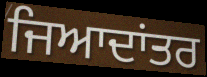
ਜਿਆਦਾਂਤਰ